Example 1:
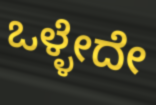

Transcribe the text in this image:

ಒಳ್ಳೇದೇ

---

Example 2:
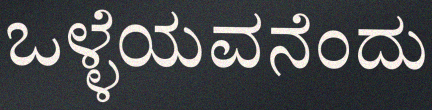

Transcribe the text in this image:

ಒಳ್ಳೆಯವನೆಂದು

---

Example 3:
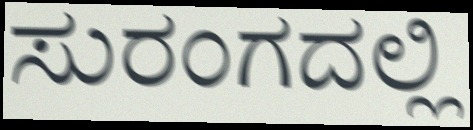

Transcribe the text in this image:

ಸುರಂಗದಲ್ಲಿ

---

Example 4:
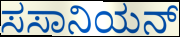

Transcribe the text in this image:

ಸಸಾನಿಯನ್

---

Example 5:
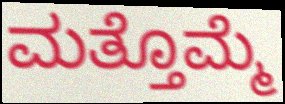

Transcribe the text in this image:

ಮತ್ತೊಮ್ಮೆ